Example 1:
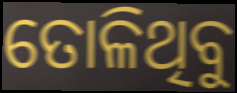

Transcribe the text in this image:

ତୋଳିଥିବୁ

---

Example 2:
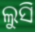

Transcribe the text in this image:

ଲୁସି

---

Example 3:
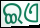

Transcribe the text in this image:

ଇଏ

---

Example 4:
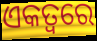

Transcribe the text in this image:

ଏକତ୍ୱରେ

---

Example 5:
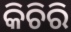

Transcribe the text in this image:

କିଚିରି